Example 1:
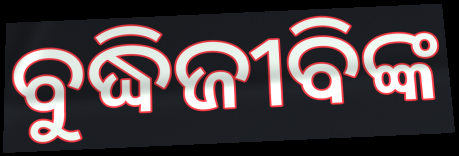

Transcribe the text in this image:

ବୁଦ୍ଧିଜୀବିଙ୍କ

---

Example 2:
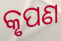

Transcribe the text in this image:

କୃପଣ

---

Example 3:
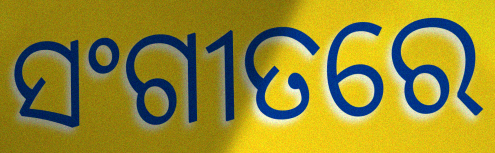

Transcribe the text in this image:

ସଂଗୀତରେ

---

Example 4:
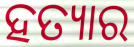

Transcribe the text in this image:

ହତ୍ୟାର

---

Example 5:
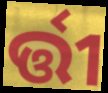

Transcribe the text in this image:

ର୍ତ୍ତୀ